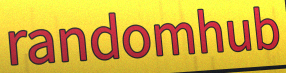
randomhub